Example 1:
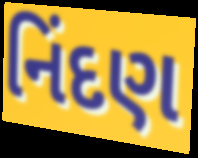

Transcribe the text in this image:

નિંદણ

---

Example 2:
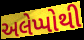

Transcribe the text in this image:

અલેપ્પોથી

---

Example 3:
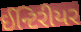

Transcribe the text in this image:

ઈન્ટિરીયર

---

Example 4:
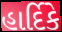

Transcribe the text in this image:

હાર્દિકે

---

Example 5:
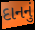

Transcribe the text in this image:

દાનનું